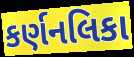
કર્ણનલિકા